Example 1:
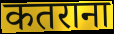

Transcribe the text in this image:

कतराना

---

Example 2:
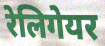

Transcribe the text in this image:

रेलिगेयर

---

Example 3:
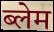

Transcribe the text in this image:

ब्लेम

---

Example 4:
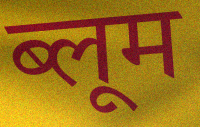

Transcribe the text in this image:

ब्लूम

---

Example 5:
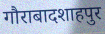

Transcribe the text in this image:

गौराबादशाहपुर